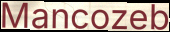
Mancozeb